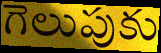
గెలుపుకు